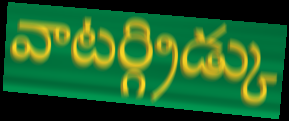
వాటర్గ్రిడ్కు